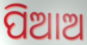
ପିଆଅ